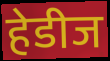
हेडीज